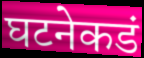
घटनेकडं